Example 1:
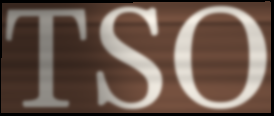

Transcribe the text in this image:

TSO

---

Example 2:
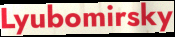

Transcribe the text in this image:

Lyubomirsky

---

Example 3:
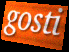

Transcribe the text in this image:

gosti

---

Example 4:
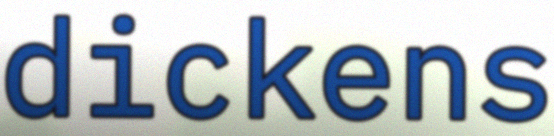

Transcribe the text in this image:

dickens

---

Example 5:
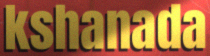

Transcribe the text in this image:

kshanada